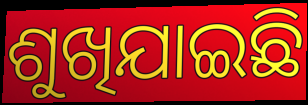
ଶୁଖିଯାଇଛି